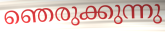
ഞെരുക്കുന്നു